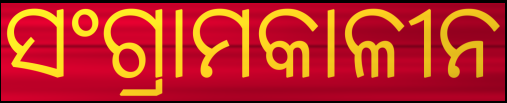
ସଂଗ୍ରାମକାଳୀନ